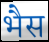
भैस